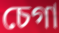
চেগা